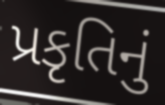
પ્રકૃતિનું